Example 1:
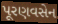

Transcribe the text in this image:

પૂરણવસેન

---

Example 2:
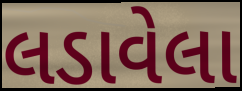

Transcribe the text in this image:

લડાવેલા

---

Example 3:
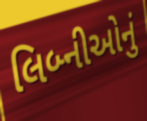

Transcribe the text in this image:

લિબ્નીઓનું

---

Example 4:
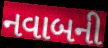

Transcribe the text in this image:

નવાબની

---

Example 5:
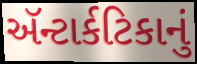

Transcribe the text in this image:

ઍન્ટાર્કટિકાનું